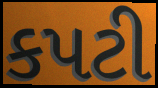
કપટી